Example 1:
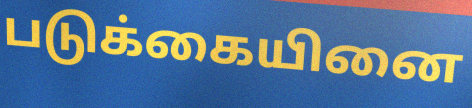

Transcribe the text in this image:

படுக்கையினை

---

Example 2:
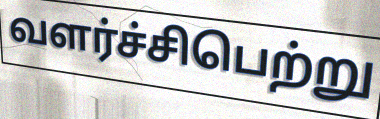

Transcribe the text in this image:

வளர்ச்சிபெற்று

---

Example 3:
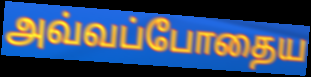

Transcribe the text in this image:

அவ்வப்போதைய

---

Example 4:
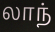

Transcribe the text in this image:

லாந்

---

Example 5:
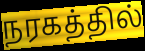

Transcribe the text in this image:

நரகத்தில்